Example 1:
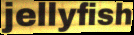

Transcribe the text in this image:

jellyfish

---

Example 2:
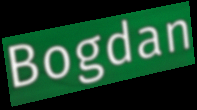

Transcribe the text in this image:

Bogdan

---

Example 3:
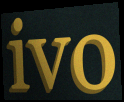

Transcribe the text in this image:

ivo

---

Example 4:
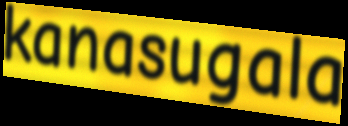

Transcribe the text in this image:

kanasugala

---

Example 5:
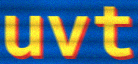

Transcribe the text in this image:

uvt